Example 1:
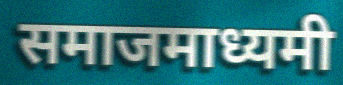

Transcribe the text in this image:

समाजमाध्यमी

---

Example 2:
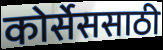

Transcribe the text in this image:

कोर्सेससाठी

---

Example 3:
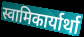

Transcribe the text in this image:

स्वामिकार्यार्था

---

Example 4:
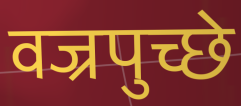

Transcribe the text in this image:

वज्रपुच्छे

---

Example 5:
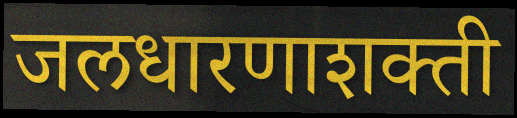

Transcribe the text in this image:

जलधारणाशक्ती